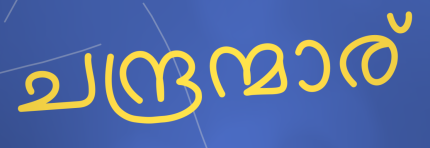
ചന്ദ്രന്മാര്